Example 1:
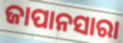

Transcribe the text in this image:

ଜାପାନସାରା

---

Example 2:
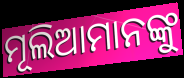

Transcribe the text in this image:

ମୂଲିଆମାନଙ୍କୁ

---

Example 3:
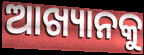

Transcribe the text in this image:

ଆଖ୍ୟାନକୁ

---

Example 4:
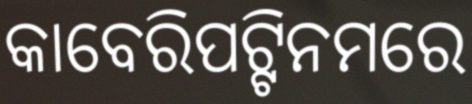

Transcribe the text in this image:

କାବେରିପଟ୍ଟିନମରେ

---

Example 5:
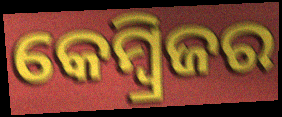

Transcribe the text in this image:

କେମ୍ୱ୍ରିଜର